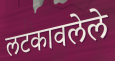
लटकावलेले